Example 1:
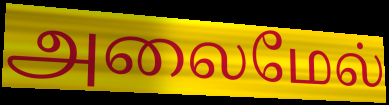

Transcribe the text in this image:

அலைமேல்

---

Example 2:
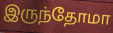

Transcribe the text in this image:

இருந்தோமா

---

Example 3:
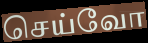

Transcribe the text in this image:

செய்வோ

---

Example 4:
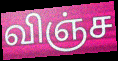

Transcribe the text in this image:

விஞ்ச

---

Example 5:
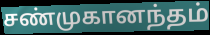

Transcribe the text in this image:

சண்முகானந்தம்